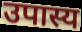
उपास्य